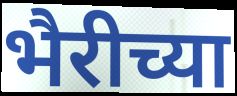
भैरीच्या